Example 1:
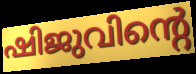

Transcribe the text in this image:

ഷിജുവിന്റെ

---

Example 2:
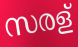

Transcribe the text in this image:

സരള്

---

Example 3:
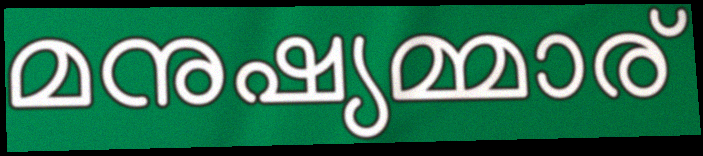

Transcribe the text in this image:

മനുഷ്യമ്മാര്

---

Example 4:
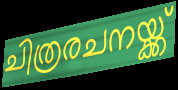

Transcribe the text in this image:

ചിത്രരചനയ്ക്ക്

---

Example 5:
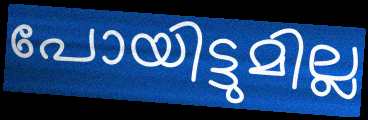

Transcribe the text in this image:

പോയിട്ടുമില്ല